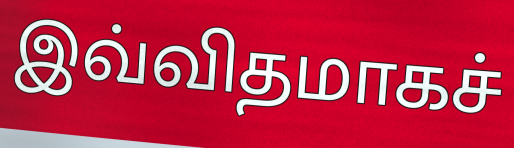
இவ்விதமாகச்